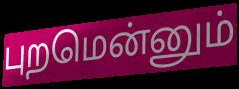
புறமென்னும்